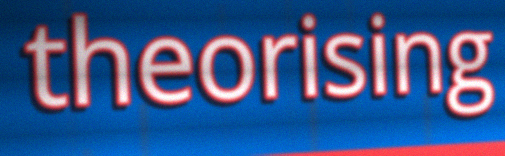
theorising